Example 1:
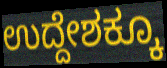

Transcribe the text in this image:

ಉದ್ದೇಶಕ್ಕೂ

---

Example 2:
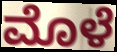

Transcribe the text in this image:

ಮೊಳೆ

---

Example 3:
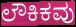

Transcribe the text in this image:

ಲೌಕಿಕವು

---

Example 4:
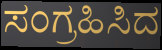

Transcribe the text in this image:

ಸಂಗ್ರಹಿಸಿದ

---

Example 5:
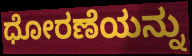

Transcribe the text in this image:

ಧೋರಣೆಯನ್ನು